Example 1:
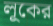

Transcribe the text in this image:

লূকের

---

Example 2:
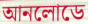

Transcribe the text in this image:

আনলোডে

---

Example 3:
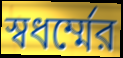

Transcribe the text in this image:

স্বধর্ম্মের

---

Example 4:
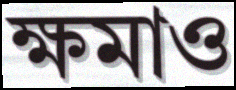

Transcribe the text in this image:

ক্ষমাও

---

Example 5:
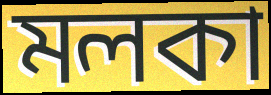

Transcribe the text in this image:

মলকা